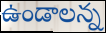
ఉండాలన్న